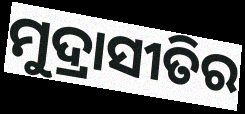
ମୁଦ୍ରାସୀତିର